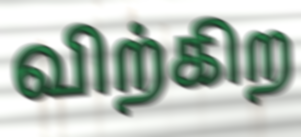
விற்கிற